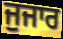
ਜੁਜਾਰ